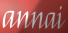
annai